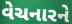
વેચનારને